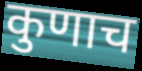
कुणाच